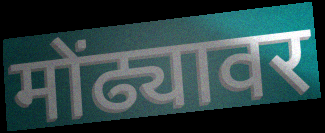
मोंढ्यावर